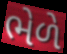
ભેળે